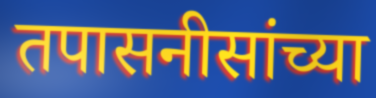
तपासनीसांच्या